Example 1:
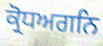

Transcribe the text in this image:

ਕ੍ਰੋਧਅਗਨਿ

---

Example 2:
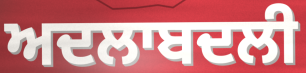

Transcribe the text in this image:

ਅਦਲਾਬਦਲੀ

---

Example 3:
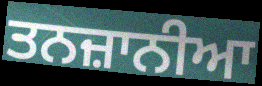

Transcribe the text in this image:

ਤਨਜ਼ਾਨੀਆ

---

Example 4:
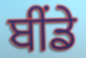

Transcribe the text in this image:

ਬੀਂਡੇ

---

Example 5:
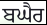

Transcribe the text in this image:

ਬਘੈਰ